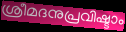
ശ്രീമദനുപ്രവിഷ്ടാം